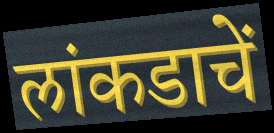
लांकडाचें